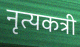
नृत्यकत्री